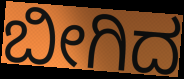
ಬೀಗಿದ